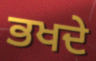
ਭਖਦੇ